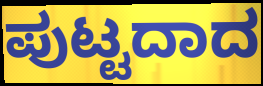
ಪುಟ್ಟದಾದ